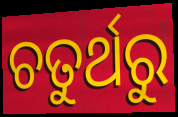
ଚତୁର୍ଥରୁ